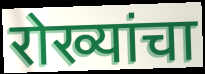
रोख्यांचा